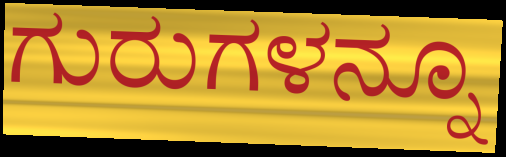
ಗುರುಗಳನ್ನೂ